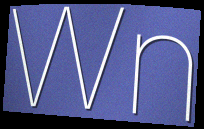
Wn